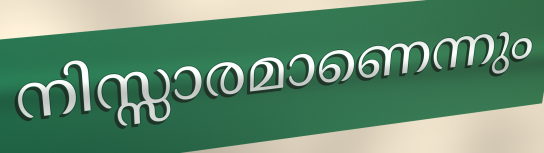
നിസ്സാരമാണെന്നും